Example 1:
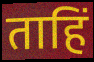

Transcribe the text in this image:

ताहिं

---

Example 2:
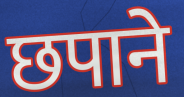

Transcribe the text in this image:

छपाने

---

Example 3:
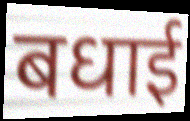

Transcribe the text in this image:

बधाई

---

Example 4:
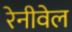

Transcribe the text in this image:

रेनीवेल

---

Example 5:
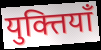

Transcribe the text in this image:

युक्तियाँ